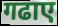
गढाए